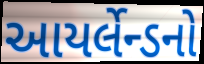
આયર્લેન્ડનો